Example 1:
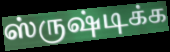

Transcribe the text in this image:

ஸ்ருஷ்டிக்க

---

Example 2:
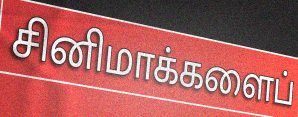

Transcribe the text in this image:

சினிமாக்களைப்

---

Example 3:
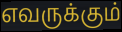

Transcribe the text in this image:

எவருக்கும்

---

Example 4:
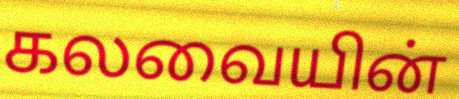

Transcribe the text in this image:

கலவையின்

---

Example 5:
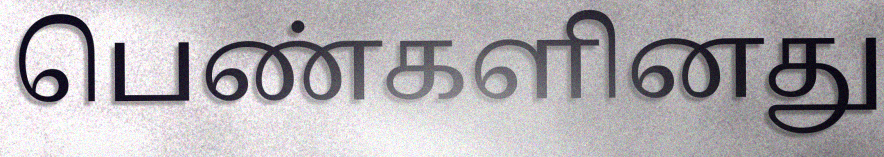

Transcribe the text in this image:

பெண்களினது